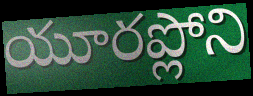
యూరప్లోని